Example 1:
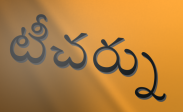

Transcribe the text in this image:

టీచర్ను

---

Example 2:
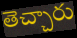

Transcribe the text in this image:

తెచ్చారు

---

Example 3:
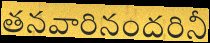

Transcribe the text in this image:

తనవారినందరినీ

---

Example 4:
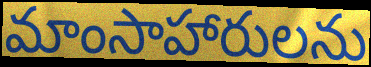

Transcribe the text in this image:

మాంసాహారులను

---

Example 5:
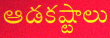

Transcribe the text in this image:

ఆడకష్టాలు